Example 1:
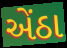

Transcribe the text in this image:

એંઠા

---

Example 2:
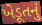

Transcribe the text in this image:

ખેડૂતનું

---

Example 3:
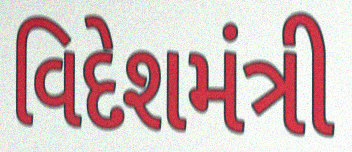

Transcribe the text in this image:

વિદેશમંત્રી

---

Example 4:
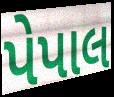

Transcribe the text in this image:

પેપાલ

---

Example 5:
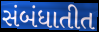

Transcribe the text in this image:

સંબંધાતીત